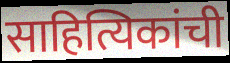
साहित्यिकांची